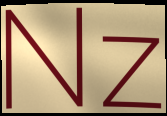
Nz